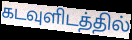
கடவுளிடத்தில்